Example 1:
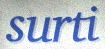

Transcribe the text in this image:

surti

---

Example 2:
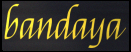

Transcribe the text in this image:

bandaya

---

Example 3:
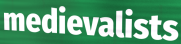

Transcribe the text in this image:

medievalists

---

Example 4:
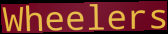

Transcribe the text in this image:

Wheelers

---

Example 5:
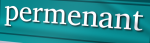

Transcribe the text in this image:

permenant